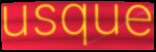
usque